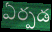
ఏర్పడ